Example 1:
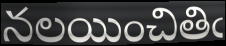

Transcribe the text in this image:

నలయించితిఁ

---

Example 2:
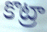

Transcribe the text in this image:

కొట్రా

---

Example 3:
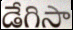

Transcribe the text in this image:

డేగిసా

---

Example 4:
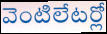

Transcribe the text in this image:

వెంటిలేటర్లో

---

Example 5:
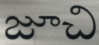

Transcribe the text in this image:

జూచి